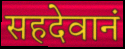
सहदेवानं